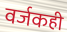
वर्जकही